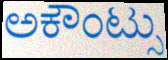
ಅಕೌಂಟ್ಸು